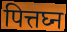
पित्तघ्न